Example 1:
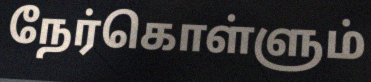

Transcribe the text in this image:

நேர்கொள்ளும்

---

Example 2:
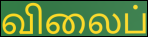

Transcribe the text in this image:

விலைப்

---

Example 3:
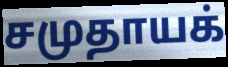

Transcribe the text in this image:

சமுதாயக்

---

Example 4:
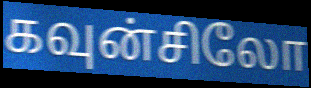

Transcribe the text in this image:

கவுன்சிலோ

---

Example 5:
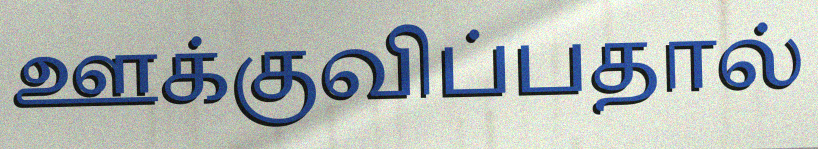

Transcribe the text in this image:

ஊக்குவிப்பதால்